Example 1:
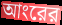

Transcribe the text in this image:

আংরের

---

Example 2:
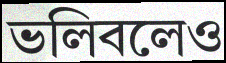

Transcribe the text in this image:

ভলিবলেও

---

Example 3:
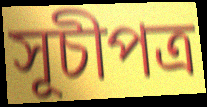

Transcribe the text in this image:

সূচীপত্র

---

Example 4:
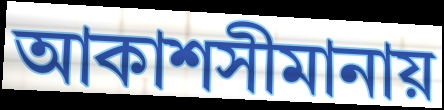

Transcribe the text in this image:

আকাশসীমানায়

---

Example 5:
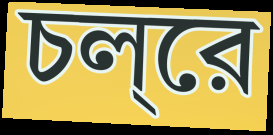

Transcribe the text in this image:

চল্‌রে